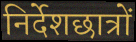
निर्देशछात्रों